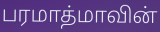
பரமாத்மாவின்